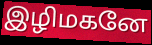
இழிமகனே